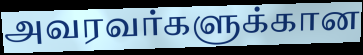
அவரவர்களுக்கான